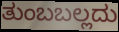
ತುಂಬಬಲ್ಲದು